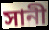
সানী